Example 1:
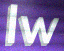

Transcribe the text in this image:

Iw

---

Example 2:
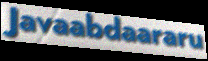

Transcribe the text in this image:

Javaabdaararu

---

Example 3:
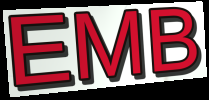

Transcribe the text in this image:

EMB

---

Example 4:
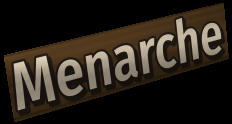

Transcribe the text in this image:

Menarche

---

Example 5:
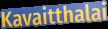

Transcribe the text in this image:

Kavaitthalai